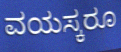
ವಯಸ್ಕರೂ